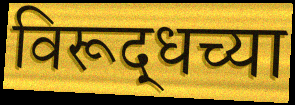
विरूद्धच्या